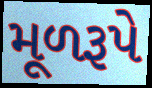
મૂળરૂપે